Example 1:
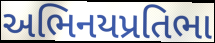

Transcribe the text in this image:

અભિનયપ્રતિભા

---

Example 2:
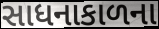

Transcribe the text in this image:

સાધનાકાળના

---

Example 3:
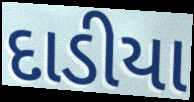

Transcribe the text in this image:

દાડીયા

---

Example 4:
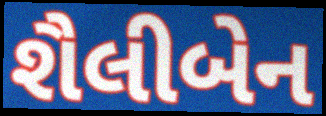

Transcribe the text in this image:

શૈલીબેન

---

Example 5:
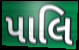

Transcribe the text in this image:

પાલિ